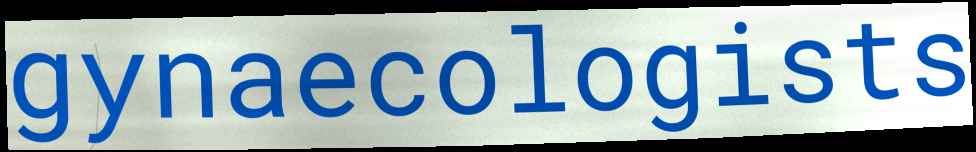
gynaecologists